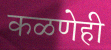
कळणेही